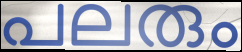
പലരും